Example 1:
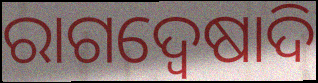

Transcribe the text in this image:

ରାଗଦ୍ୱେଷାଦି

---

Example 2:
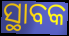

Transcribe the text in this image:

ସ୍ଥାବକ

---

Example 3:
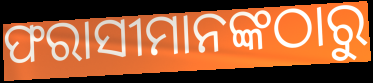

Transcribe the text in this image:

ଫରାସୀମାନଙ୍କଠାରୁ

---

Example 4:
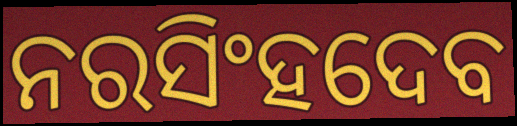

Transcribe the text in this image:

ନରସିଂହଦେବ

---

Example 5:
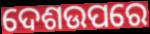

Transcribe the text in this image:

ଦେଶଉପରେ